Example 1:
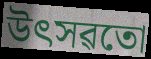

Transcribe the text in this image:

উৎসৱতো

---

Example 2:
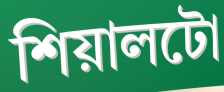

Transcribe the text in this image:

শিয়ালটো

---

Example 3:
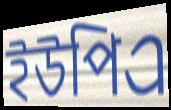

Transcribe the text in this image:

ইউপিএ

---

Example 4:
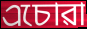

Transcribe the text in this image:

এচোৱা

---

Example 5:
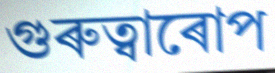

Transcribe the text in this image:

গুৰুত্বাৰোপ